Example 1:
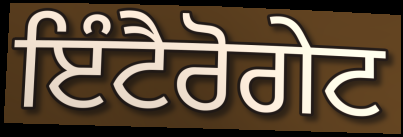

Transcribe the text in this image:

ਇੰਟੈਰੋਗੇਟ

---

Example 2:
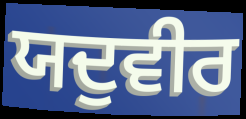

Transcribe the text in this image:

ਯਦੁਵੀਰ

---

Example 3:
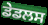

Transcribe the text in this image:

ਡੇਡਲਸ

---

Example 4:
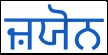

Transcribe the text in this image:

ਜ਼ਯੋਨ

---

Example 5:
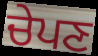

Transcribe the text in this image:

ਚੇਪਣ